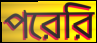
পরেরি